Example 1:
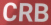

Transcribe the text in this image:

CRB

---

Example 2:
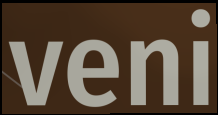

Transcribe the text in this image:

veni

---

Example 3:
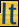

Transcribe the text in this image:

It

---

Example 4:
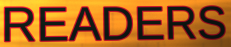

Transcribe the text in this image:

READERS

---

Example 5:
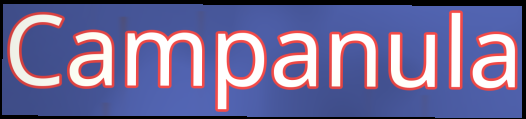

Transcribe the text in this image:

Campanula